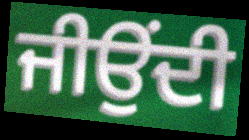
ਜੀਉਂਦੀ